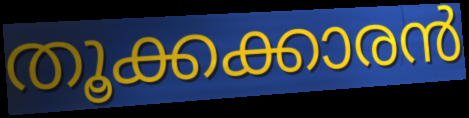
തൂക്കക്കാരൻ